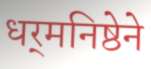
धर्मनिष्ठेने